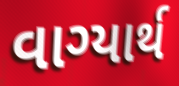
વાગ્યાર્થ